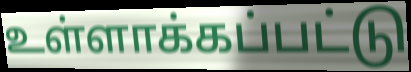
உள்ளாக்கப்பட்டு